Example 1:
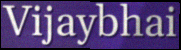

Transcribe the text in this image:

Vijaybhai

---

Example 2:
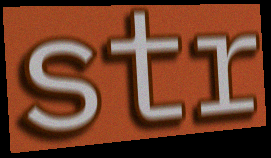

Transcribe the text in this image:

str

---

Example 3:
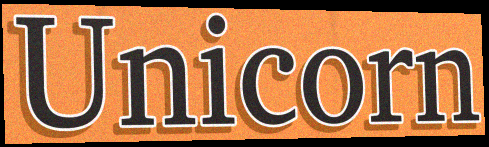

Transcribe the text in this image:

Unicorn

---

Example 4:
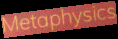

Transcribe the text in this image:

Metaphysics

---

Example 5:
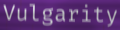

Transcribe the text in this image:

Vulgarity